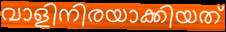
വാളിനിരയാക്കിയത്